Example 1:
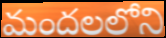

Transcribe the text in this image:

మందలలోని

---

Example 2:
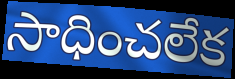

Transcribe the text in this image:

సాధించలేక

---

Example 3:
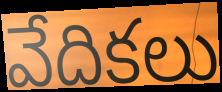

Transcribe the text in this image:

వేదికలు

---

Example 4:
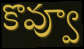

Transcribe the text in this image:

కొవ్వూ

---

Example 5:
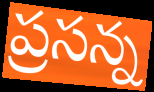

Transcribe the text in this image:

ప్రసన్న